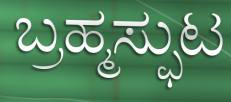
ಬ್ರಹ್ಮಸ್ಫುಟ